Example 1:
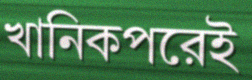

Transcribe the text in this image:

খানিকপরেই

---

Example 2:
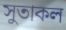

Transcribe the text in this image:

সুতাকল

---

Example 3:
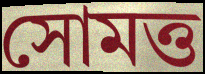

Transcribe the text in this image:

সোমত্ত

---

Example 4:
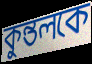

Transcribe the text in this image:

কুন্তলকে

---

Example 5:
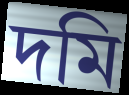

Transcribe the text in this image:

দমি